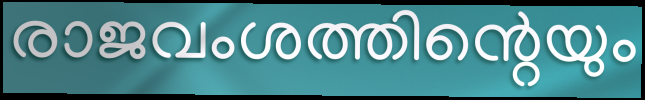
രാജവംശത്തിന്റെയും